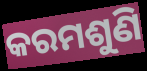
କରମଶୁଣି